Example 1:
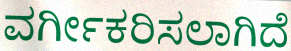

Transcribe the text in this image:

ವರ್ಗೀಕರಿಸಲಾಗಿದೆ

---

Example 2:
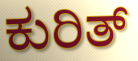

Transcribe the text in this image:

ಕುರಿತ್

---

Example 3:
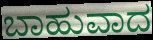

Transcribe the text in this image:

ಬಾಹುವಾದ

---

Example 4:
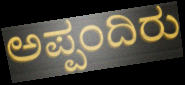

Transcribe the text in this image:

ಅಪ್ಪಂದಿರು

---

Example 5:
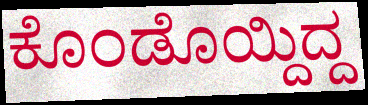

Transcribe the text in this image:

ಕೊಂಡೊಯ್ದಿದ್ದ